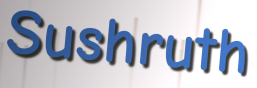
Sushruth